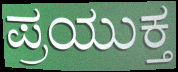
ಪ್ರಯುಕ್ತ